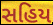
સહિય